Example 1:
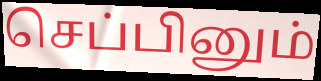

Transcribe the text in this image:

செப்பினும்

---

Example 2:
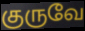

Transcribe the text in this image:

குருவே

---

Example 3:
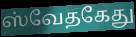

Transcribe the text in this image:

ஸ்வேதகேது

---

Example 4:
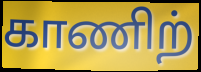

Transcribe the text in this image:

காணிற்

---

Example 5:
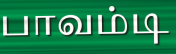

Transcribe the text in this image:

பாவம்டி